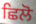
ਛਿਲੋ